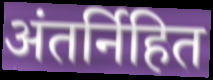
अंतर्निहित